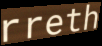
rreth